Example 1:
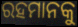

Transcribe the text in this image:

ରହମାନକୁ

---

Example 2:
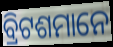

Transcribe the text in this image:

ବ୍ରିଟଶମାନେ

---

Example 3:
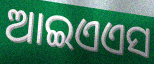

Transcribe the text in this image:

ଆଇଏଏସ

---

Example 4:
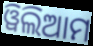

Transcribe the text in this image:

ୱିଲିଆମ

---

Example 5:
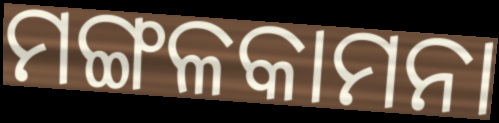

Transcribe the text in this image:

ମଙ୍ଗଳକାମନା